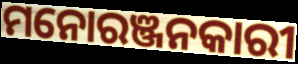
ମନୋରଞ୍ଜନକାରୀ